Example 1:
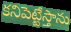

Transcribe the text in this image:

కనిపెట్టేస్తాను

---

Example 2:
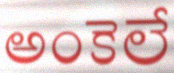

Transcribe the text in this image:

అంకెలే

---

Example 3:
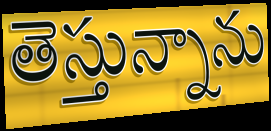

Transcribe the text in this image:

తెస్తున్నాను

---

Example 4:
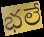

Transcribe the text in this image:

భలే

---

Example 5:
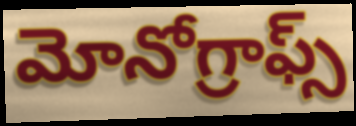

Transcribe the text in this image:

మోనోగ్రాఫ్స్